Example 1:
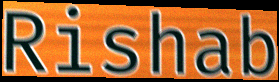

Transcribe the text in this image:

Rishab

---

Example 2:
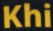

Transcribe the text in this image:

Khi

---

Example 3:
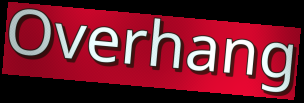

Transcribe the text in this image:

Overhang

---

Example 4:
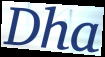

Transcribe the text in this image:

Dha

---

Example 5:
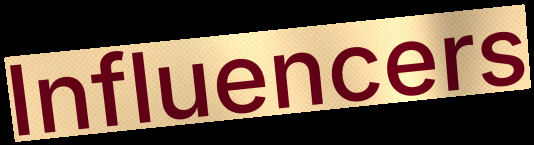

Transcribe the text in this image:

Influencers